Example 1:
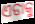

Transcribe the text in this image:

ଏଡାକୁ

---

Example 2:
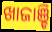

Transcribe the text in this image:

ଖାଜାଞ୍ଚି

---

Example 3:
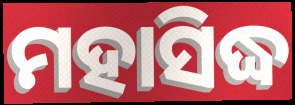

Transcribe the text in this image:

ମହାସିଦ୍ଧ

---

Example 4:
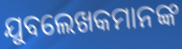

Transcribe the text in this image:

ଯୁବଲେଖକମାନଙ୍କ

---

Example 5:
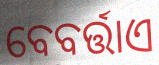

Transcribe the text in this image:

ବେବର୍ତ୍ତାଏ